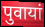
पुवायां